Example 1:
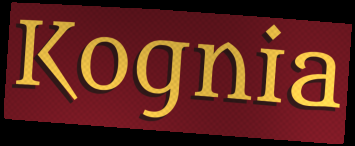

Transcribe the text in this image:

Kognia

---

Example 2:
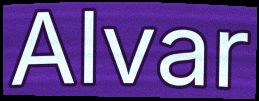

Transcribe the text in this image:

Alvar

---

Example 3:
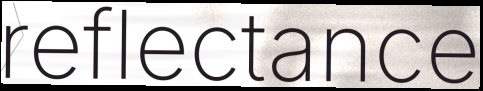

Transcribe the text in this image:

reflectance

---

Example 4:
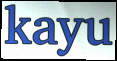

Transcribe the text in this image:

kayu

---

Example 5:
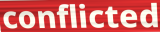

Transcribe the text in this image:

conflicted